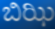
ಬಿಝಿ